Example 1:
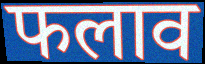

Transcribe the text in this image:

फलाव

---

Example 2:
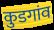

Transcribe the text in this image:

कुडगांव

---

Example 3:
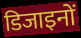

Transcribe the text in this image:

डिजाइनों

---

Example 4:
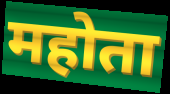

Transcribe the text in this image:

महोता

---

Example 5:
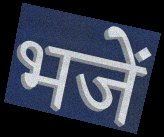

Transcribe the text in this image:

भजें